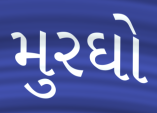
મુરઘો